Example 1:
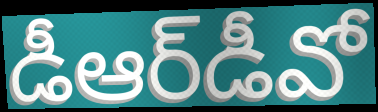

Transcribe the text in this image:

డీఆర్‌డీవో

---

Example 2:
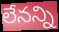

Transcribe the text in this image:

లేనన్ని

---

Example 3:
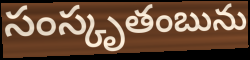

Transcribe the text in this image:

సంస్కృతంబును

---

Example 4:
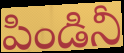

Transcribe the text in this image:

పిండినీ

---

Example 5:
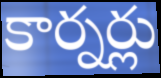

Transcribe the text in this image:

కార్నర్లు